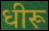
धीरू